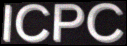
ICPC